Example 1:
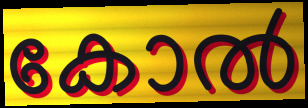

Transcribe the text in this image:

കോൽ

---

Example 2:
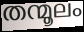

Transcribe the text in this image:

തന്മൂലം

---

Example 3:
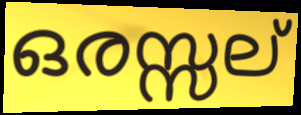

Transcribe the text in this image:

ഒരസ്സല്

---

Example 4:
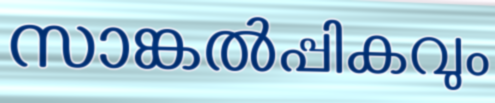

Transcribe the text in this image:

സാങ്കൽപ്പികവും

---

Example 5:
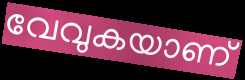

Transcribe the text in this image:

വേവുകയാണ്